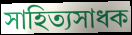
সাহিত্যসাধক